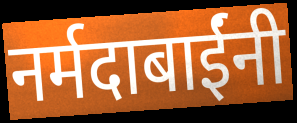
नर्मदाबाईंनी